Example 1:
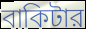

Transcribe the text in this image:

বাকিটার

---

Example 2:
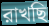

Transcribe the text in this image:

রাখছি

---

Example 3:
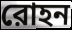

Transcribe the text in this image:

রোহন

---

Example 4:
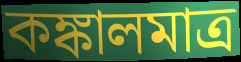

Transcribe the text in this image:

কঙ্কালমাত্র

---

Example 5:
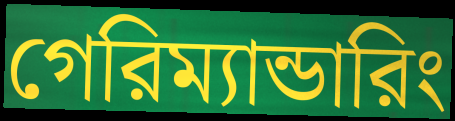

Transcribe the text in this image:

গেরিম্যান্ডারিং